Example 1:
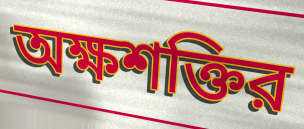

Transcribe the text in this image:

অক্ষশক্তির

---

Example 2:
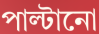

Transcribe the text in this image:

পাল্টানো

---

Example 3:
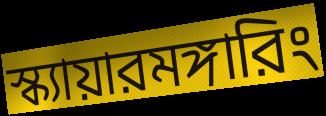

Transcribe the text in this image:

স্ক্যায়ারমঙ্গারিং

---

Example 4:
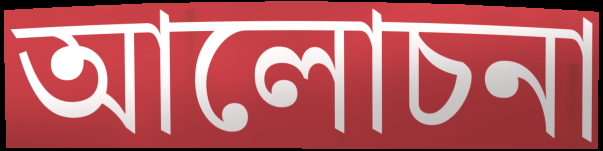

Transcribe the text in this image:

আলোচনা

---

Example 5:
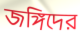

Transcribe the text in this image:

জঙ্গিদের